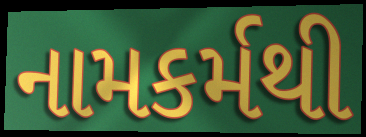
નામકર્મથી